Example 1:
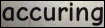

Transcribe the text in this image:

accuring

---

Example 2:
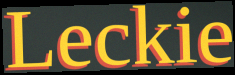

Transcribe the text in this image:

Leckie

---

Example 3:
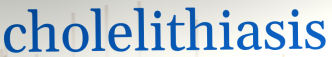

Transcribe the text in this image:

cholelithiasis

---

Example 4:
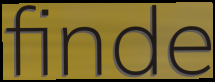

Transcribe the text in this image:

finde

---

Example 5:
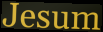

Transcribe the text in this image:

Jesum